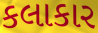
કલાકાર